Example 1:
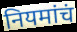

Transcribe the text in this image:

नियमांचं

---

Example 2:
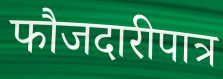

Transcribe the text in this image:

फौजदारीपात्र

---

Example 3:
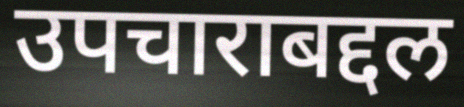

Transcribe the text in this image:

उपचाराबद्दल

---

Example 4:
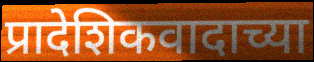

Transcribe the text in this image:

प्रादेशिकवादाच्या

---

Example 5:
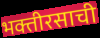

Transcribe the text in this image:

भक्तीरसाची